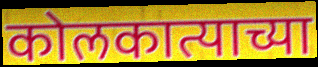
कोलकात्याच्या